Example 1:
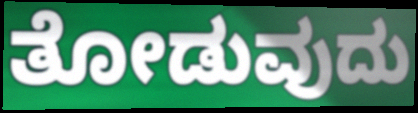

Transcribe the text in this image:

ತೋಡುವುದು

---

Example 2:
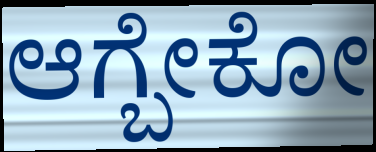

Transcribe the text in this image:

ಆಗ್ಬೇಕೋ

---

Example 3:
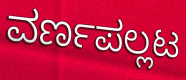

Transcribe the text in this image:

ವರ್ಣಪಲ್ಲಟ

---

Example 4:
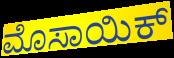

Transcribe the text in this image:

ಮೊಸಾಯಿಕ್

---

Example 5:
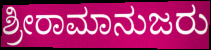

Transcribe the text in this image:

ಶ್ರೀರಾಮಾನುಜರು